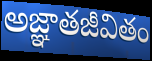
అజ్ఞాతజీవితం